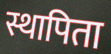
स्थापिता